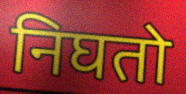
निघतो